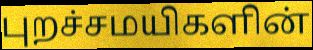
புறச்சமயிகளின்